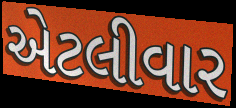
એટલીવાર